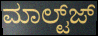
ಮಾಲ್ಟ್‌ಜ್